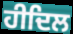
ਹੀਦਿਲ